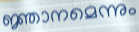
ജ്ഞാനമെന്നും